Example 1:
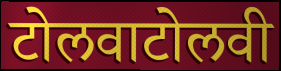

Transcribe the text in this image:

टोलवाटोलवी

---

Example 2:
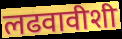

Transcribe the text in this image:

लढवावीशी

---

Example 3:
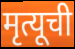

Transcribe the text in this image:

मृत्यूची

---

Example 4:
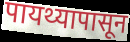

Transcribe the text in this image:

पायथ्यापासून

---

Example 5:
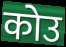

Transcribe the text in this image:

कोउ